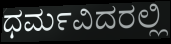
ಧರ್ಮವಿದರಲ್ಲಿ